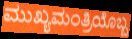
ಮುಖ್ಯಮಂತ್ರಿಯೊಬ್ಬ